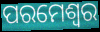
ପରମେଶ୍ୱର